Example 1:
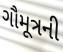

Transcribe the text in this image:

ગૌમૂત્રની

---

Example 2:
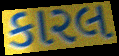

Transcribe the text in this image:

કારલ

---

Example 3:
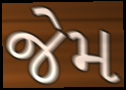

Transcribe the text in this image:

જેમ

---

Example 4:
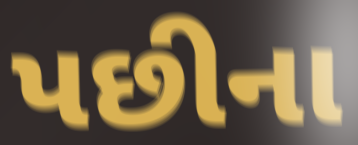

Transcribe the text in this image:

પછીના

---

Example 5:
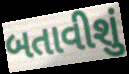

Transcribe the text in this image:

બતાવીશું